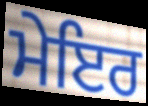
ਮੇਇਰ